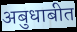
अबुधाबीत